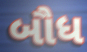
બૌધ